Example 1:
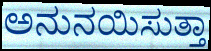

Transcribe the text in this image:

ಅನುನಯಿಸುತ್ತಾ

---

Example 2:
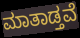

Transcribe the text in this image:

ಮಾತಾಡ್ತವೆ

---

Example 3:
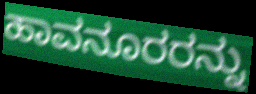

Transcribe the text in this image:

ಹಾವನೂರರನ್ನು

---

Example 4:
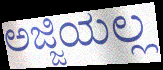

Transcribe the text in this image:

ಅಜ್ಜಿಯಲ್ಲ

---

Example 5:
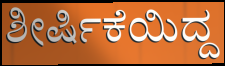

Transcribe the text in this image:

ಶೀರ್ಷಿಕೆಯಿದ್ದ